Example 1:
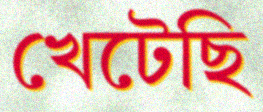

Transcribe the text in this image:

খেটেছি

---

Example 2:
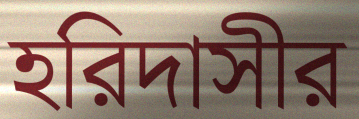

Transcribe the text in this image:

হরিদাসীর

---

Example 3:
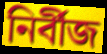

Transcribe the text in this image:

নির্বীজ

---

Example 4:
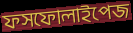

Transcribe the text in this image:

ফসফোলাইপেজ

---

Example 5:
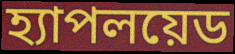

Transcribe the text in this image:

হ্যাপলয়েড